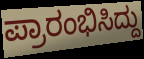
ಪ್ರಾರಂಭಿಸಿದ್ದು